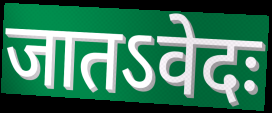
जातऽवेदः